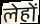
लेहों